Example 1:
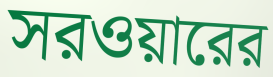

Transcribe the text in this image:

সরওয়ারের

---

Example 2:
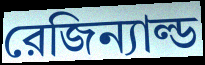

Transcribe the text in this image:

রেজিন্যাল্ড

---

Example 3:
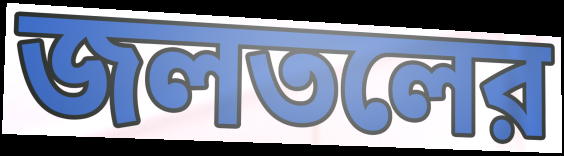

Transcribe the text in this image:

জলতলের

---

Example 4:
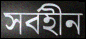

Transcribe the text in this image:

সর্বহীন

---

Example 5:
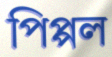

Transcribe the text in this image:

পিপ্পল